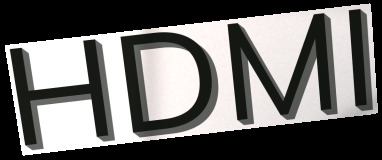
HDMI